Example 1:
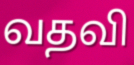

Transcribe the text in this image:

வதவி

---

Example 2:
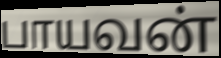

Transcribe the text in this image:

பாயவன்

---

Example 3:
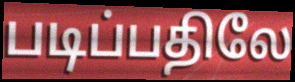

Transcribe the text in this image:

படிப்பதிலே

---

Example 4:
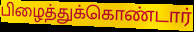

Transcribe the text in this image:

பிழைத்துக்கொண்டார்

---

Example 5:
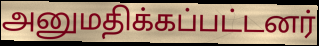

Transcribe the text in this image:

அனுமதிக்கப்பட்டனர்